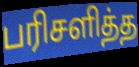
பரிசளித்த